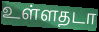
உள்ளதடா